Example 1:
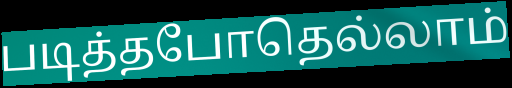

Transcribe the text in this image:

படித்தபோதெல்லாம்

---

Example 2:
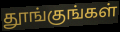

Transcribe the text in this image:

தூங்குங்கள்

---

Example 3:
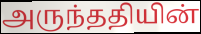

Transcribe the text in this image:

அருந்ததியின்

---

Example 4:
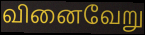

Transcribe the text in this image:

வினைவேறு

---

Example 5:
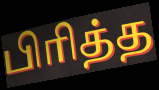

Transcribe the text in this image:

பிரித்த